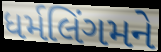
ધર્મલિંગમને